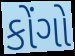
કોંગો